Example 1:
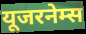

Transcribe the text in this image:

यूजरनेम्स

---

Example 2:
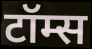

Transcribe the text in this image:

टॉम्स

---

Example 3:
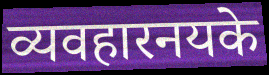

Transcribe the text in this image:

व्यवहारनयके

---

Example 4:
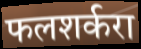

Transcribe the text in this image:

फलशर्करा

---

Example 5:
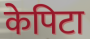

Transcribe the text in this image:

केपिटा